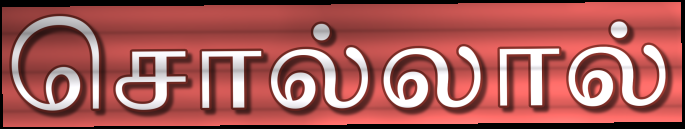
சொல்லால்